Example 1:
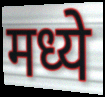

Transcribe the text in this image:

मध्ये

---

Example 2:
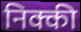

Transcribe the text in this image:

निक्की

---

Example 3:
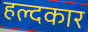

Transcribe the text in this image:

हल्दकार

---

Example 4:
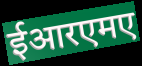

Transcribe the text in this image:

ईआरएमए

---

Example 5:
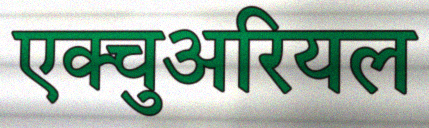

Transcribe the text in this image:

एक्चुअरियल